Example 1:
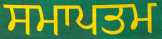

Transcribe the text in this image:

ਸਮਾਪਤਮ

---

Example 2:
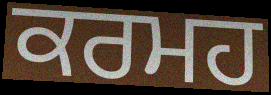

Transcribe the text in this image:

ਕਰਮਹ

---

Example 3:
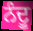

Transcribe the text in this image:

ਨੰਦੂ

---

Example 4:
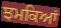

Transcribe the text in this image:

ਝਮਕਿਆਂ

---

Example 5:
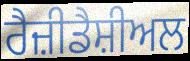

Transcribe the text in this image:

ਰੈਜ਼ੀਡੈਸ਼ੀਅਲ